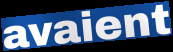
avaient